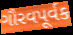
ગૌરવપૂર્વક